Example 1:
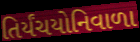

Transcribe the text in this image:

તિર્યંચયોનિવાળા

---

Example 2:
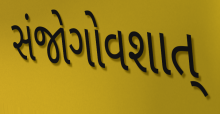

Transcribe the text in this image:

સંજોગોવશાત્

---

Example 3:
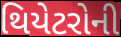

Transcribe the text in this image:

થિયેટરોની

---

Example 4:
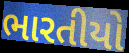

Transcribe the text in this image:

ભારતીયો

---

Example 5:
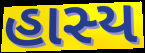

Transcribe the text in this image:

હાસ્ય